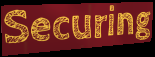
Securing